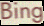
Bing